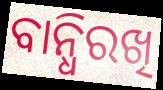
ବାନ୍ଧିରଖି